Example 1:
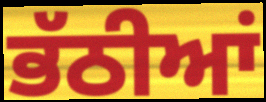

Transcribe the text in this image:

ਭੱਠੀਆਂ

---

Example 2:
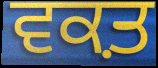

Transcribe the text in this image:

ਵਕ਼ਤ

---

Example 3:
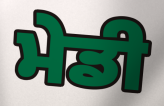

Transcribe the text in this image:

ਮੇਡੀ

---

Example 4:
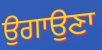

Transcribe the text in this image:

ਉਗਾਉਣਾ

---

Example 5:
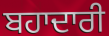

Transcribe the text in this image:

ਬਹਾਦਾਰੀ